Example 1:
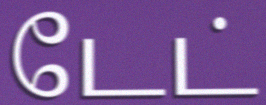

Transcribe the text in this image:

டேட்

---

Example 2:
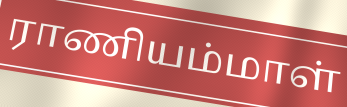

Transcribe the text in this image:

ராணியம்மாள்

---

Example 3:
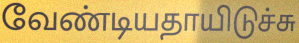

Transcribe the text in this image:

வேண்டியதாயிடுச்சு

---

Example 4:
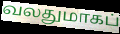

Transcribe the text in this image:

வலதுமாகப்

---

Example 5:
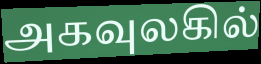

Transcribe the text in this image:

அகவுலகில்